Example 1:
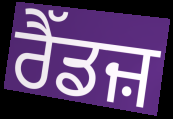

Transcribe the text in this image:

ਰੈੱਡਜ਼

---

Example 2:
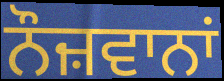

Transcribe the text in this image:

ਨੌਜ਼ਵਾਨਾਂ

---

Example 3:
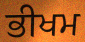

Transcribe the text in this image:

ਭੀਖਮ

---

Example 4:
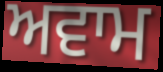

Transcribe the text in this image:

ਅਵਾਮ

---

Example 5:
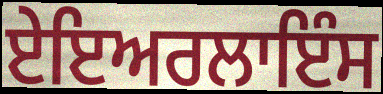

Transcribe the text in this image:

ਏਇਅਰਲਾਇੰਸ